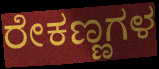
ರೇಕಣ್ಣಗಳ